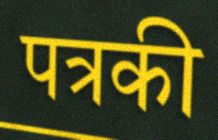
पत्रकी